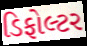
ડિફોલ્ટર